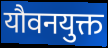
यौवनयुक्त